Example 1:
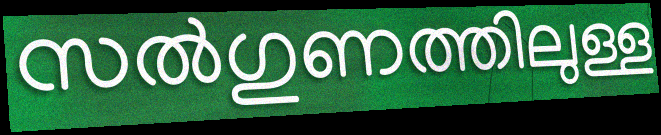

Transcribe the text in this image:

സൽഗുണത്തിലുള്ള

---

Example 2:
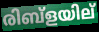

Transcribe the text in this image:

രിബ്ളയില്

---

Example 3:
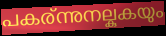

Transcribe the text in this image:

പകര്ന്നുനല്കുകയും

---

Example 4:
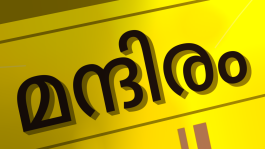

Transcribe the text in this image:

മന്ദിരം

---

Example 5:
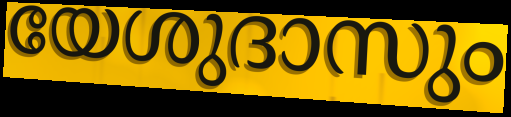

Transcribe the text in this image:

യേശുദാസും